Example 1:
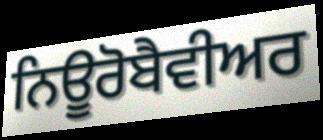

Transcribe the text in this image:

ਨਿਊਰੋਬੈਵੀਅਰ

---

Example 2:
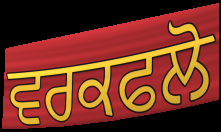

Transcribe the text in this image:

ਵਰਕਫਲੋ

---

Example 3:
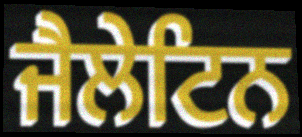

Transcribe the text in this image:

ਜੈਲੇਟਿਨ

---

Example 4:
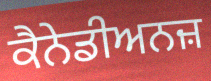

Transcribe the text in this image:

ਕੈਨੇਡੀਅਨਜ਼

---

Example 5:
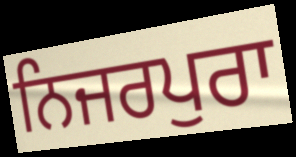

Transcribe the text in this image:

ਨਿਜਰਪੁਰਾ